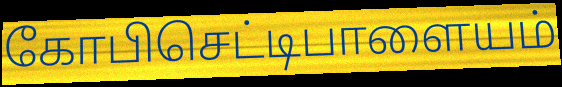
கோபிசெட்டிபாளையம்